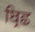
ਬ੍ਰਿਛ